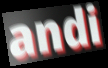
andi